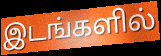
இடங்களில்